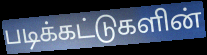
படிக்கட்டுகளின்